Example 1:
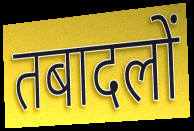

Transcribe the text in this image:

तबादलों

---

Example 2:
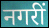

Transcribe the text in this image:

नगरीं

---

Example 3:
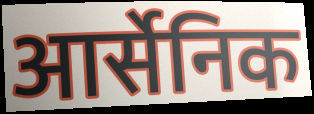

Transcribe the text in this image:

आर्सेनिक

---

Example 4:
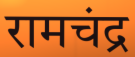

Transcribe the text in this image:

रामचंद्र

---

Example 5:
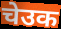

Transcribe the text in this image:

चेउक